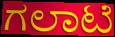
ಗಲಾಟೆ